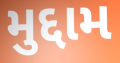
મુદ્દામ